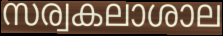
സര്വകലാശാല